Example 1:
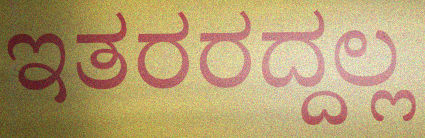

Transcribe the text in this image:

ಇತರರದ್ದಲ್ಲ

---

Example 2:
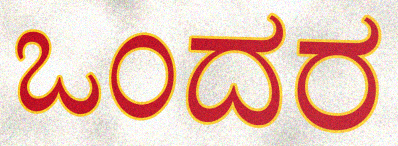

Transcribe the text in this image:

ಒಂದರ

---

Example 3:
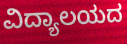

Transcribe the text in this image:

ವಿದ್ಯಾಲಯದ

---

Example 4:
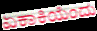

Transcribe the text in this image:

ಏಕಾಕಿಯೆಂದು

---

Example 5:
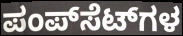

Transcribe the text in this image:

ಪಂಪ್‌ಸೆಟ್‌ಗಳ